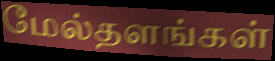
மேல்தளங்கள்